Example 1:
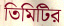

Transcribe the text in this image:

তিমিটির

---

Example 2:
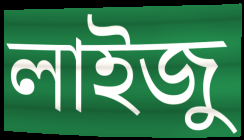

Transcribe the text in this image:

লাইজু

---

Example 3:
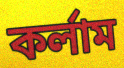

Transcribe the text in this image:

কর্লাম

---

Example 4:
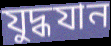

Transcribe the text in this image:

যুদ্ধযান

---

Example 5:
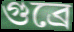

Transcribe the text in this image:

গুব্রে